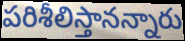
పరిశీలిస్తానన్నారు